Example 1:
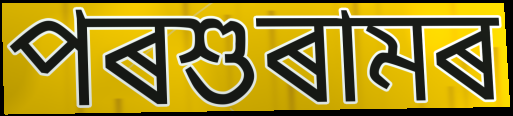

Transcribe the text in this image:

পৰশুৰামৰ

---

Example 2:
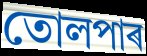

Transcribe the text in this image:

তোলপাৰ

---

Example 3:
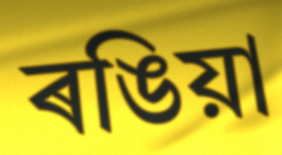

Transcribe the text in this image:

ৰঙিয়া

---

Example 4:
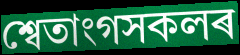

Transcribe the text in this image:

শ্বেতাংগসকলৰ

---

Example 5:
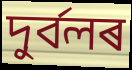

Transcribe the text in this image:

দুৰ্বলৰ